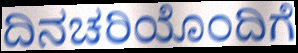
ದಿನಚರಿಯೊಂದಿಗೆ